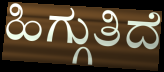
ಹಿಗ್ಗುತಿದೆ